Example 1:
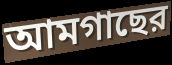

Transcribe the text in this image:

আমগাছের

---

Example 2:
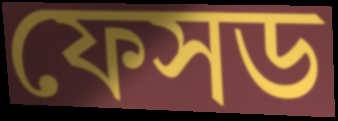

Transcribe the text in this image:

ফেসড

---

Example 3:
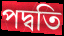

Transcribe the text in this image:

পদ্বতি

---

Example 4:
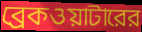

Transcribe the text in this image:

ব্রেকওয়াটারের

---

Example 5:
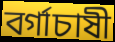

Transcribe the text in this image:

বর্গাচাষী